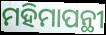
ମହିମାପନ୍ଥୀ